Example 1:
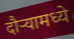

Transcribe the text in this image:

दौऱ्यामध्ये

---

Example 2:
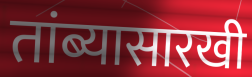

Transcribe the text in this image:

तांब्यासारखी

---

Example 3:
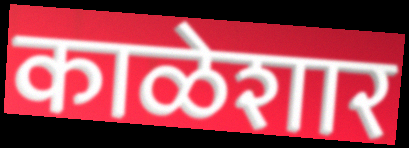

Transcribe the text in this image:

काळेशार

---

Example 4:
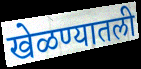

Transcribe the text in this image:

खेळण्यातली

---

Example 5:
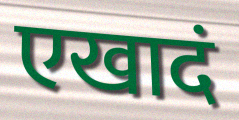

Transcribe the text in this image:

एखादं